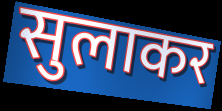
सुलाकर